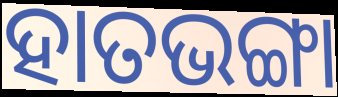
ହାତଭଙ୍ଗା